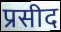
प्रसीद